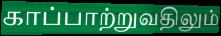
காப்பாற்றுவதிலும்